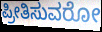
ಪ್ರೀತಿಸುವರೋ